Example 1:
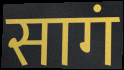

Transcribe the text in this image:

सागं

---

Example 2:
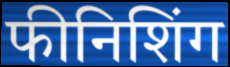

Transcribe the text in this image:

फीनिशिंग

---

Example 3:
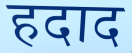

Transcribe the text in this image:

हदाद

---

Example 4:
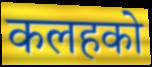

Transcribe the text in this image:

कलहको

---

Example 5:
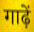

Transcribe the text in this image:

गाढ़ें